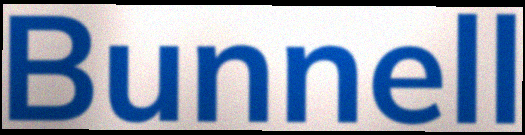
Bunnell